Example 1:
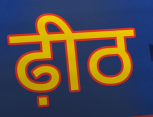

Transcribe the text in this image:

ढ़ीठ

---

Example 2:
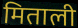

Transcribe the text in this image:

मिताली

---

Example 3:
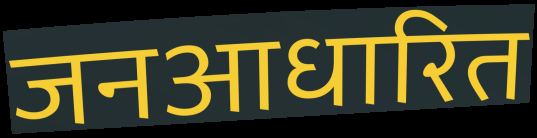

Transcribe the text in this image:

जनआधारित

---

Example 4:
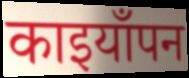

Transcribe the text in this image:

काइयाँपन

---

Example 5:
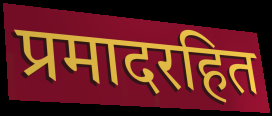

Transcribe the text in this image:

प्रमादरहित